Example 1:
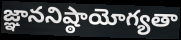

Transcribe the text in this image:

జ్ఞాననిష్ఠాయోగ్యతా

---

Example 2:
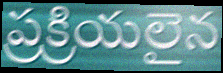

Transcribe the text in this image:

ప్రక్రియలైన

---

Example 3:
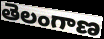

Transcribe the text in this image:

తెలంగాణ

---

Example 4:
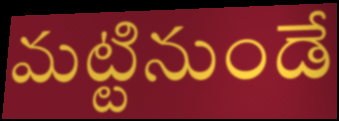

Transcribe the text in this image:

మట్టినుండే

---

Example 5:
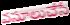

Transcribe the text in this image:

వసూలుచేసే